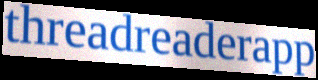
threadreaderapp